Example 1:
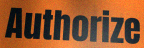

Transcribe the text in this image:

Authorize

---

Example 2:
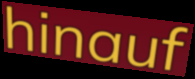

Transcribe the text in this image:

hinauf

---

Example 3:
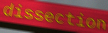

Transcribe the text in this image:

dissection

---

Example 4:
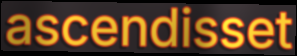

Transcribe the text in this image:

ascendisset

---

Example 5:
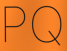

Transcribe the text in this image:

PQ